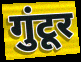
गुंटूर